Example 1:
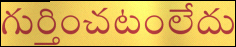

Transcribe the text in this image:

గుర్తించటంలేదు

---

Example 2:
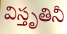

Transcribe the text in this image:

విస్తృతినీ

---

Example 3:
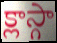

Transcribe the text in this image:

క్లాస్గా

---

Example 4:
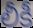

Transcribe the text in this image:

లీకీ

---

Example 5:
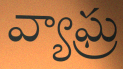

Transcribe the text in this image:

వ్యాఘ్ర